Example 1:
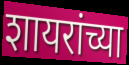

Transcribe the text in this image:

शायरांच्या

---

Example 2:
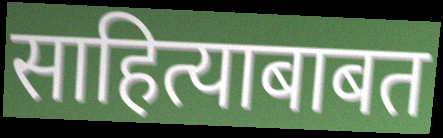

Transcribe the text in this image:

साहित्याबाबत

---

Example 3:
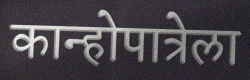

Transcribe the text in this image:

कान्होपात्रेला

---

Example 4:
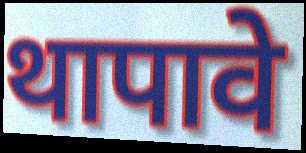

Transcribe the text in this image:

थापावे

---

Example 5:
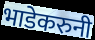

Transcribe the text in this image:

भाडेकरुनी